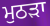
ਮੁਠੜਾ